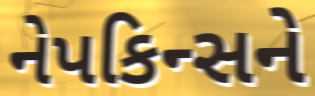
નેપકિન્સને